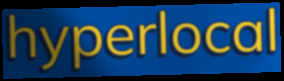
hyperlocal